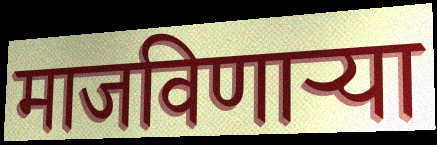
माजविणाऱ्या